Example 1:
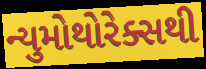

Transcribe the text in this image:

ન્યુમોથોરેક્સથી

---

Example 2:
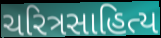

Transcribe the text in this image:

ચરિત્રસાહિત્ય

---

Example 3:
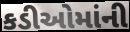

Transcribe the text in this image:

કડીઓમાંની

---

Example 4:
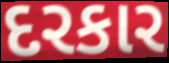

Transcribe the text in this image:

દરકાર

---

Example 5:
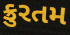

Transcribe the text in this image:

ક્રુરતમ